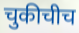
चुकीचीच